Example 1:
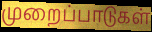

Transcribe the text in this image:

முறைப்பாடுகள்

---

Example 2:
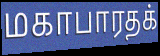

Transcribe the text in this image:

மகாபாரதக்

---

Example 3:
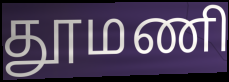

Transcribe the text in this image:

தூமணி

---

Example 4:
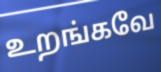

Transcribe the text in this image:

உறங்கவே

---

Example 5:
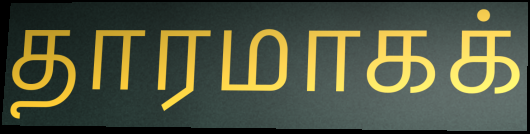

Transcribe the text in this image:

தாரமாகக்